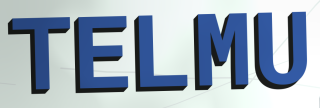
TELMU